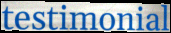
testimonial